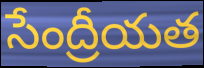
సేంద్రీయత